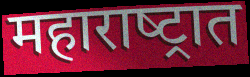
महाराष्‍ट्रात